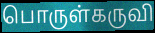
பொருள்கருவி